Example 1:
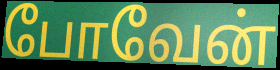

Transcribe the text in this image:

போவேன்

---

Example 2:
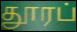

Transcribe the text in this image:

தூரப்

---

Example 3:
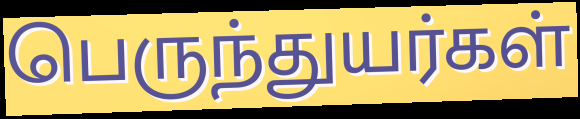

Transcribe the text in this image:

பெருந்துயர்கள்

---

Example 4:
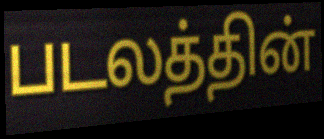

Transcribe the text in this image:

படலத்தின்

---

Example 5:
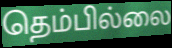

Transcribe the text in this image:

தெம்பில்லை